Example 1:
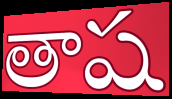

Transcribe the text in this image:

తాష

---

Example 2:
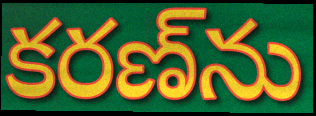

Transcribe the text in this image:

కరణ్‌ను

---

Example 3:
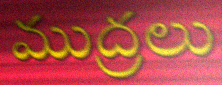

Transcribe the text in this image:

ముద్రలు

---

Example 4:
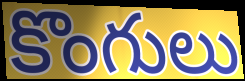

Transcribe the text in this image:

కొంగులు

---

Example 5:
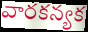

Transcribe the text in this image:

వారకన్యక